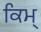
ਕਿਮ੍